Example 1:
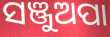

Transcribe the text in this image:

ସଞ୍ଜୁଅପା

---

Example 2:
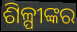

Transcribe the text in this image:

ଶିଳ୍ପୀଙ୍କର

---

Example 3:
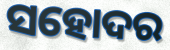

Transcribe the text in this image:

ସହୋଦର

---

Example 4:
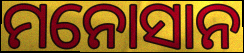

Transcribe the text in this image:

ମନୋସାନ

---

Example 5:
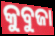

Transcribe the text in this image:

କୁବୁଜା